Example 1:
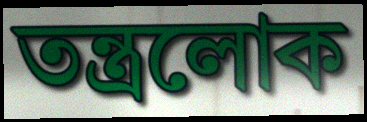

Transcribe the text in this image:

তন্ত্রলোক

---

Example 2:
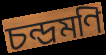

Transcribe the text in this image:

চন্দ্রমণি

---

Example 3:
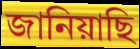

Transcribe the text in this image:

জানিয়াছি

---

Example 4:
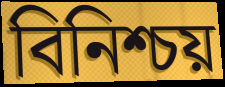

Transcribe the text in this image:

বিনিশ্চয়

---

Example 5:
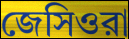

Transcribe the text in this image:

জেসিওরা